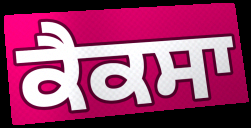
ਕੈਕਸਾ